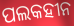
ପଲକହୀନ